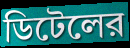
ডিটেলের